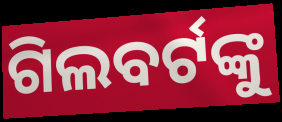
ଗିଲବର୍ଟଙ୍କୁ